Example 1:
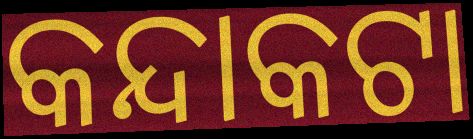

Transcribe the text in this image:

କନ୍ଦାକଟା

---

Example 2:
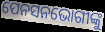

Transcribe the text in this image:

ପେନସନଭୋଗୀଙ୍କୁ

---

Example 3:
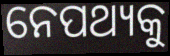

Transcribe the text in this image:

ନେପଥ୍ୟକୁ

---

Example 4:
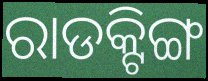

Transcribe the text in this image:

ରାଡକ୍ଟିଙ୍ଗ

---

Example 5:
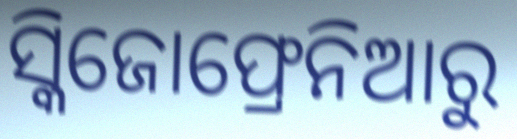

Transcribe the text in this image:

ସ୍କିଜୋଫ୍ରେନିଆରୁ